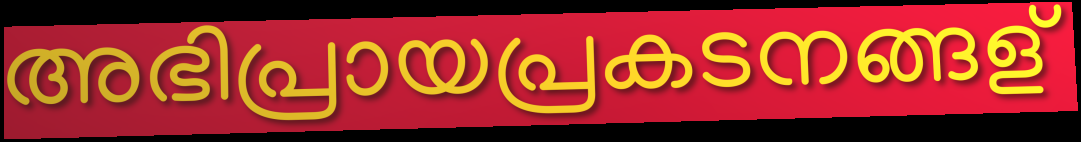
അഭിപ്രായപ്രകടനങ്ങള്